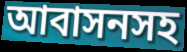
আবাসনসহ